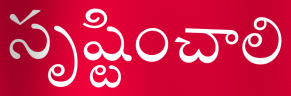
సృష్టించాలి